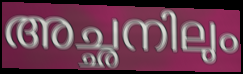
അച്ഛനിലും